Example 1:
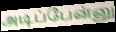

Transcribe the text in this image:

அடிப்பேன்னு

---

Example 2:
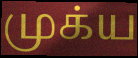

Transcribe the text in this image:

முக்ய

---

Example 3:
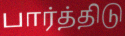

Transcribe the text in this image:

பார்த்திடு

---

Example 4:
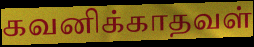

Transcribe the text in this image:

கவனிக்காதவள்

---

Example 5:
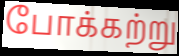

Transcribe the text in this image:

போக்கற்று